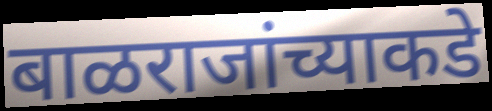
बाळराजांच्याकडे